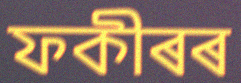
ফকীৰৰ